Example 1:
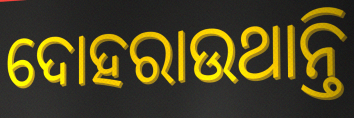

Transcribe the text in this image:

ଦୋହରାଉଥାନ୍ତି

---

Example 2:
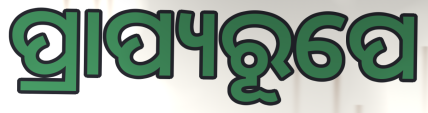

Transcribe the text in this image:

ପ୍ରାପ୍ୟରୂପେ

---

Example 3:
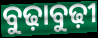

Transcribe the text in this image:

ବୁଢ଼ାବୁଢ଼ୀ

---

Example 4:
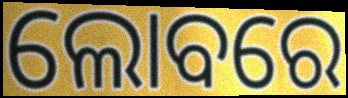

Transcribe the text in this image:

ଲୋବରେ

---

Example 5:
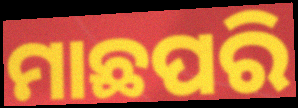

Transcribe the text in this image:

ମାଛପରି